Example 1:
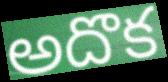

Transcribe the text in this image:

అదొక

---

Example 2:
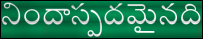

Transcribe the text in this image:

నిందాస్పదమైనది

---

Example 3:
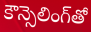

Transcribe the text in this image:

కౌన్సెలింగ్‌తో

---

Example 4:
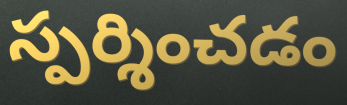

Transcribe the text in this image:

స్పర్శించడం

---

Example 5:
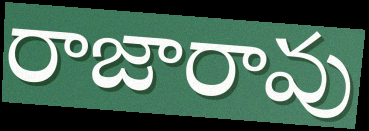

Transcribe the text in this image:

రాజారావు